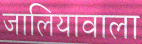
जालियावाला